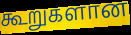
கூறுகளான